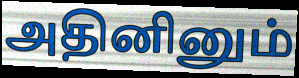
அதினினும்